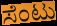
ಸೆಂಟು